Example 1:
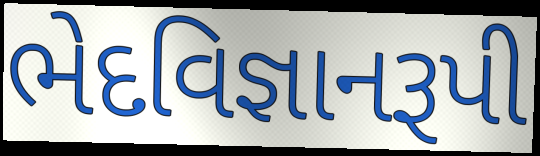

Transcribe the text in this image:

ભેદવિજ્ઞાનરૂપી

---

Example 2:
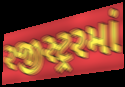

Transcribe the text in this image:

રજીસ્ટ્રરમાં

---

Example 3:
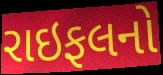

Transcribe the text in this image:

રાઇફલનો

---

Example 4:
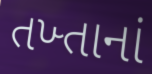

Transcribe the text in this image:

તખ્તાનાં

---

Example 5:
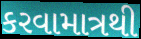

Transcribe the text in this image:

કરવામાત્રથી